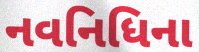
નવનિધિના